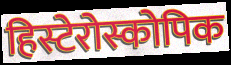
हिस्टेरोस्कोपिक